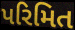
પરિમિત